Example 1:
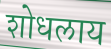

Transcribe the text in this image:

शोधलाय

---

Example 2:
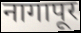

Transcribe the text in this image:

नागापूर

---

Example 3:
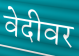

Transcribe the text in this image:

वेदीवर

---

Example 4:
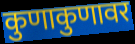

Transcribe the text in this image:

कुणाकुणावर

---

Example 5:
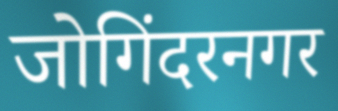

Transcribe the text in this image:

जोगिंदरनगर